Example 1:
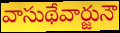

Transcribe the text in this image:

వాసుథేవార్జునౌ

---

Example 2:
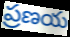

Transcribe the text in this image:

ప్రణయ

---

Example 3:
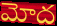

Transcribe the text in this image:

మోద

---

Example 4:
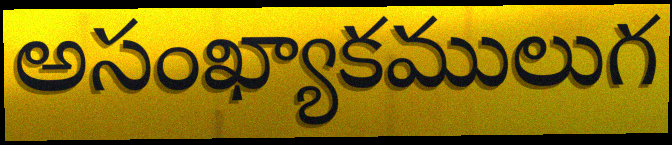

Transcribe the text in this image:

అసంఖ్యాకములుగ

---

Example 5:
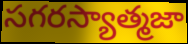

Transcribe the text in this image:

సగరస్యాత్మజా